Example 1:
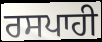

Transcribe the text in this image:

ਰਸਪਾਹੀ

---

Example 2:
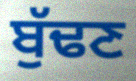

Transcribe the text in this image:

ਬੁੱਢਣ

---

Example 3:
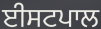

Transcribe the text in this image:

ਈਸਟਪਾਲ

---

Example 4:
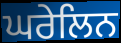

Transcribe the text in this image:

ਘਰੇਲਿਨ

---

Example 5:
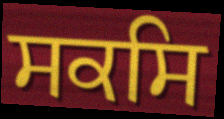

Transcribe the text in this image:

ਸਕਸਿ